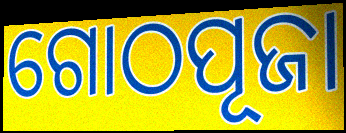
ଗୋଠପୂଜା